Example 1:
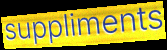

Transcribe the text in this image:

suppliments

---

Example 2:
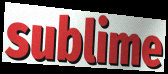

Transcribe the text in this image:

sublime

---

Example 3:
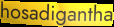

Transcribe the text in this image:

hosadigantha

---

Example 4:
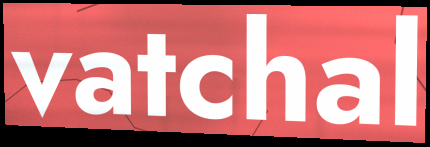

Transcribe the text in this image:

vatchal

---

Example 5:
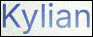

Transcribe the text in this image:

Kylian